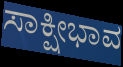
ಸಾಕ್ಷೀಭಾವ